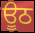
ਊਠ